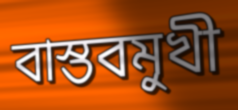
বাস্তবমুখী